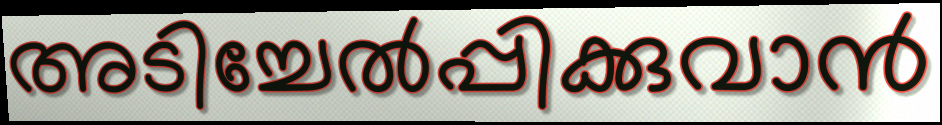
അടിച്ചേൽപ്പിക്കുവാൻ